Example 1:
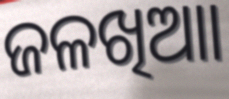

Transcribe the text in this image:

ଜଳଖିଆା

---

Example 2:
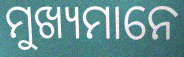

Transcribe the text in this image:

ମୁଖ୍ୟମାନେ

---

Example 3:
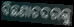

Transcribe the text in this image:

ବିଛଣାଚଦରକୁ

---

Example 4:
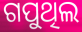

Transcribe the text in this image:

ଗପୁଥିଲ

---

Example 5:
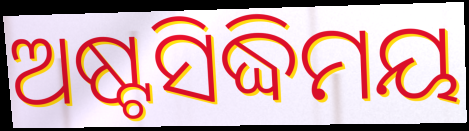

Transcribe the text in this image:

ଅଷ୍ଟସିଦ୍ଧିମୟ